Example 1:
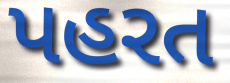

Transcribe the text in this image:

પહરત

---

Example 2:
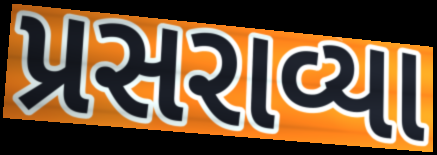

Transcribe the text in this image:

પ્રસરાવ્યા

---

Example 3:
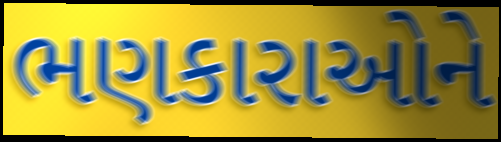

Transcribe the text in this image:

ભણકારાઓને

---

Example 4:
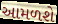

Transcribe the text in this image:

આમળશે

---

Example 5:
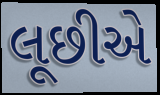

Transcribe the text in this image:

લૂછીએ